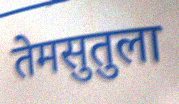
तेमसुतुला